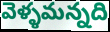
వెళ్ళమన్నది